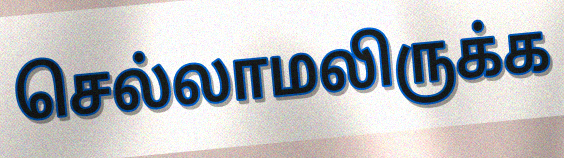
செல்லாமலிருக்க